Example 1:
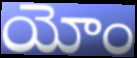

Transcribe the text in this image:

యోం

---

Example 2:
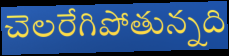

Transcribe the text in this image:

చెలరేగిపోతున్నది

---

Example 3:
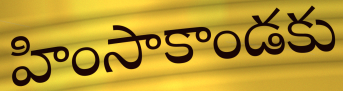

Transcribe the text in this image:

హింసాకాండకు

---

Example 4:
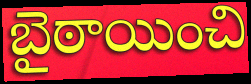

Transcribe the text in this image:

బైఠాయించి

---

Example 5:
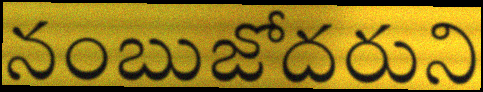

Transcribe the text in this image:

నంబుజోదరుని